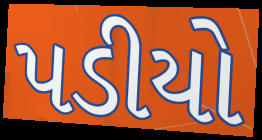
પડીયો